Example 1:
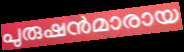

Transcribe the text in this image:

പുരുഷൻമാരായ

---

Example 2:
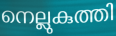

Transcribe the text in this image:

നെല്ലുകുത്തി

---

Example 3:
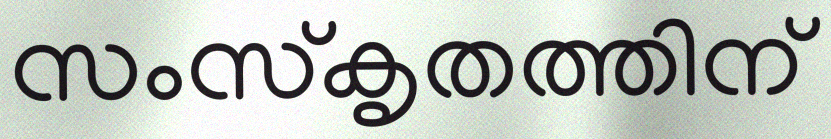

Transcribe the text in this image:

സംസ്കൃതത്തിന്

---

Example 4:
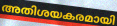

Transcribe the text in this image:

അതിശയകരമായി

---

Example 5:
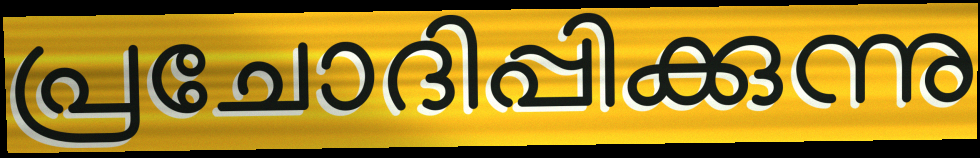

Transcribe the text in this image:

പ്രചോദിപ്പിക്കുന്നു